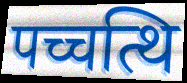
पच्चत्थि